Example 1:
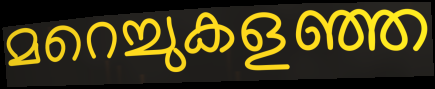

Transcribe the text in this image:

മറെച്ചുകളഞ്ഞ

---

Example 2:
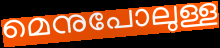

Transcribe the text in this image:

മെനുപോലുള്ള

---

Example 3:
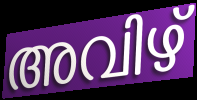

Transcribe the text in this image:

അവിഴ്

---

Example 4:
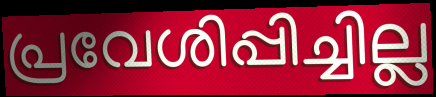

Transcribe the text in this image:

പ്രവേശിപ്പിച്ചില്ല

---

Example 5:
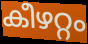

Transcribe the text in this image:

കീഴറ്റം